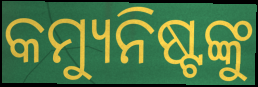
କମ୍ୟୁନିଷ୍ଟଙ୍କୁ